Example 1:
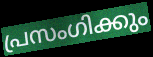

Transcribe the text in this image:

പ്രസംഗിക്കും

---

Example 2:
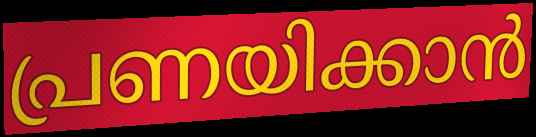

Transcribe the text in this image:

പ്രണയിക്കാൻ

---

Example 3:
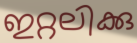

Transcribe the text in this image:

ഇറ്റലിക്കു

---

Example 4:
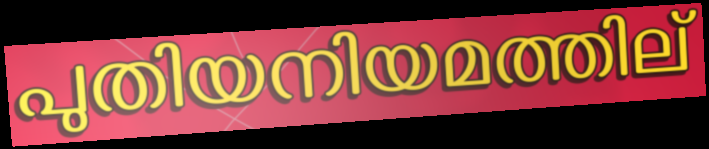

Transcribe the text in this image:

പുതിയനിയമത്തില്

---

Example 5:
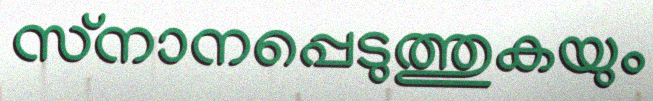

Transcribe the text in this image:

സ്‌നാനപ്പെടുത്തുകയും